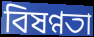
বিষণ্ণতা